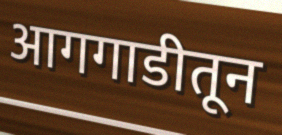
आगगाडीतून